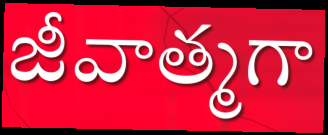
జీవాత్మగా